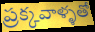
ప్రక్కవాళ్ళతో